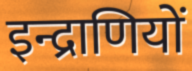
इन्द्राणियों